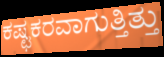
ಕಷ್ಟಕರವಾಗುತ್ತಿತ್ತು